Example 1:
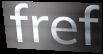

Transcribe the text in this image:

fref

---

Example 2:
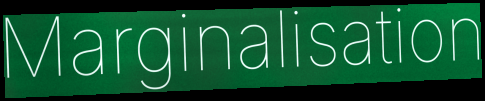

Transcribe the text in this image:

Marginalisation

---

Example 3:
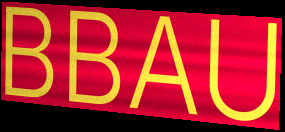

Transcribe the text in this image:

BBAU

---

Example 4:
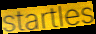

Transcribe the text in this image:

startles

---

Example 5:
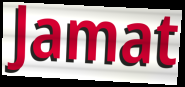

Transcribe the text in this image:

Jamat